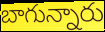
బాగున్నారు